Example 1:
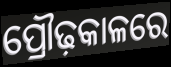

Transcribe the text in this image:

ପ୍ରୌଢ଼କାଳରେ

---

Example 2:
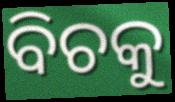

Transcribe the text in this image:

ବିଚକୁ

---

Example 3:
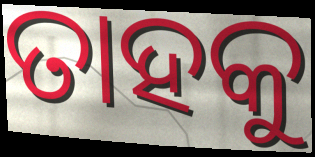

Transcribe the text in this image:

ତାହକୁ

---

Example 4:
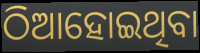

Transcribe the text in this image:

ଠିଆହୋଇଥିବା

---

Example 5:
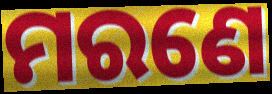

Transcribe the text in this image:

ମରଣେ